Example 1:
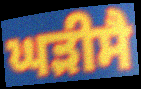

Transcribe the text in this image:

ਘੜੀਸੈ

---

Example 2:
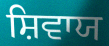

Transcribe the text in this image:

ਸ਼ਿਵਾਯ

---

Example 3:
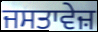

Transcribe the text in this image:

ਜਸਤਾਵੇਜ਼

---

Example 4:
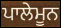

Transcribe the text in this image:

ਪਾਲੇਮੂਨ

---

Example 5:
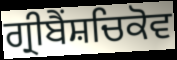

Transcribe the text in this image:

ਗ੍ਰੀਬੈਂਸ਼ਚਿਕੋਵ